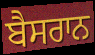
ਬੈਸਰਾਨ